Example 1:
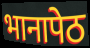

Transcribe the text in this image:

भानापेठ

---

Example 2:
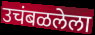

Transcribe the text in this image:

उचंबळलेला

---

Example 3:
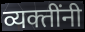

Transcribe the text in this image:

व्यक्‍तींनी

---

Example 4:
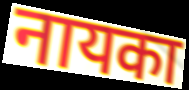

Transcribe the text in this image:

नायका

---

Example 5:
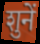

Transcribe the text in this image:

शुनें